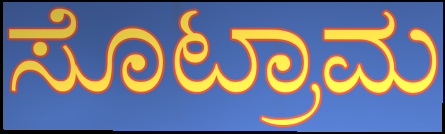
ಸೊಟ್ರಾಮ